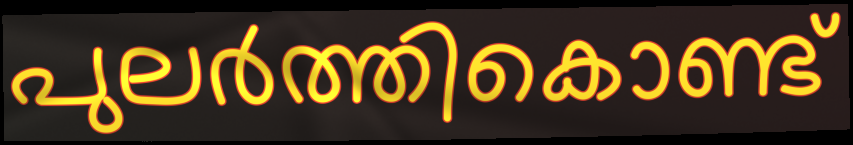
പുലർത്തികൊണ്ട്